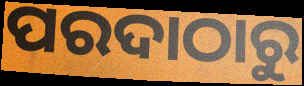
ପରଦାଠାରୁ